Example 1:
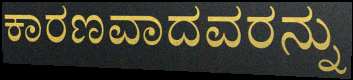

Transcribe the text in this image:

ಕಾರಣವಾದವರನ್ನು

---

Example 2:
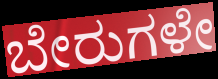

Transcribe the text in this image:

ಬೇರುಗಳೇ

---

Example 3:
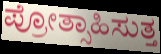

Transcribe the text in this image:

ಪ್ರೋತ್ಸಾಹಿಸುತ್ತ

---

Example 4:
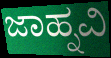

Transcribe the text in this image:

ಜಾಹ್ನವಿ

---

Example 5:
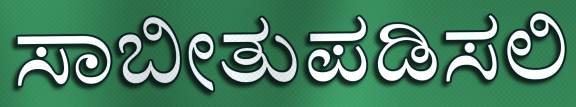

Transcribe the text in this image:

ಸಾಬೀತುಪಡಿಸಲಿ